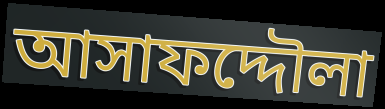
আসাফদ্দৌলা